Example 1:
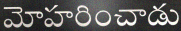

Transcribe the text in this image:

మోహరించాడు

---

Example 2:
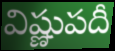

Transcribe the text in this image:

విష్ణుపదీ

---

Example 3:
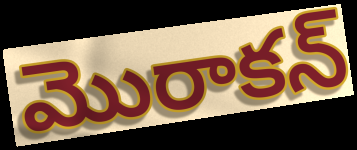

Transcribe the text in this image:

మొరాకన్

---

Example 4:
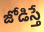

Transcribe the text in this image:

జోడిస్తే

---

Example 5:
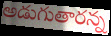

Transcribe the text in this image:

అడుగుతారన్న